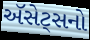
ઍસેટ્સનો